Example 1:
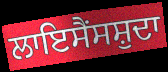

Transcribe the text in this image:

ਲਾਇਸੈਂਸਸ਼ੁਦਾ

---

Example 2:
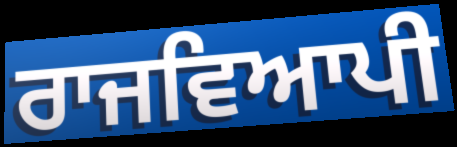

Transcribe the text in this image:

ਰਾਜਵਿਆਪੀ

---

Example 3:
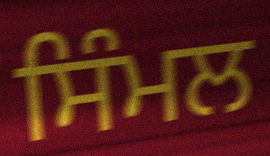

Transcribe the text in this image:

ਸਿੰਮਲ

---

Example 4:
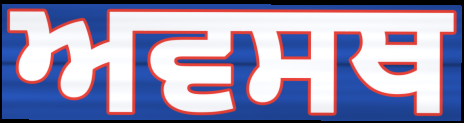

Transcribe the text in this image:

ਅਵਸਥ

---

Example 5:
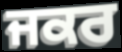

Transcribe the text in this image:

ਜਕਰ